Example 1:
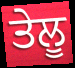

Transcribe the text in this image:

ਤੇਲੂ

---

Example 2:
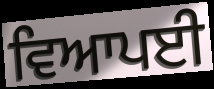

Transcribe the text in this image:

ਵਿਆਪਈ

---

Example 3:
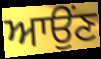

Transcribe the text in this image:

ਆਉਂਣ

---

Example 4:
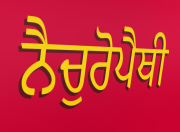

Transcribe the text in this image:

ਨੈਚੁਰੋਪੈਥੀ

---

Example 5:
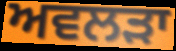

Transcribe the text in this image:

ਅਵਲੜਾ